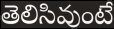
తెలిసివుంటే